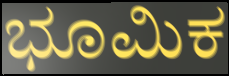
ಭೂಮಿಕ